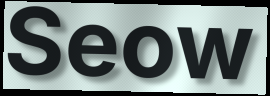
Seow